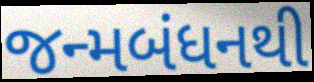
જન્મબંધનથી